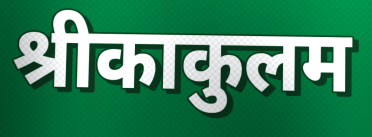
श्रीकाकुलम